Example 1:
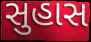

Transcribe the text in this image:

સુહાસ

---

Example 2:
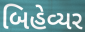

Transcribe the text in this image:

બિહેવ્યર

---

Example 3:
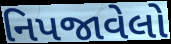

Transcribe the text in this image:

નિપજાવેલો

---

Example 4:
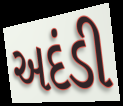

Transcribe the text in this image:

અદંડી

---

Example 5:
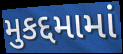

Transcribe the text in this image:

મુકદ્દમામાં